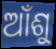
ଆଁଶୁ